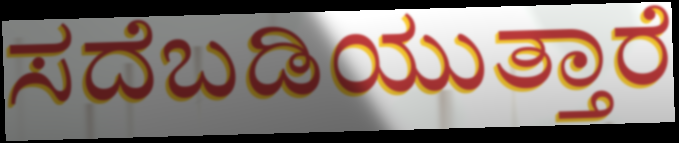
ಸದೆಬಡಿಯುತ್ತಾರೆ